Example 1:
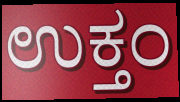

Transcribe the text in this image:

ಉಕ್ತಂ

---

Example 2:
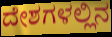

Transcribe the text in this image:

ದೇಶಗಳಲ್ಲಿನ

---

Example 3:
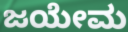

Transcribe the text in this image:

ಜಯೇಮ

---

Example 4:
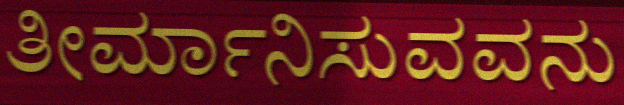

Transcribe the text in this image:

ತೀರ್ಮಾನಿಸುವವನು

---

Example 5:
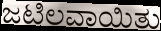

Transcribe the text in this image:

ಜಟಿಲವಾಯಿತು